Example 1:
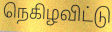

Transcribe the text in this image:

நெகிழவிட்டு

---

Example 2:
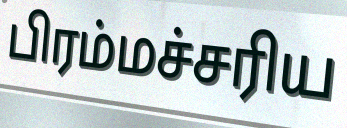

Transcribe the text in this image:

பிரம்மச்சரிய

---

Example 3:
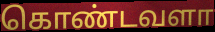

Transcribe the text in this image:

கொண்டவளா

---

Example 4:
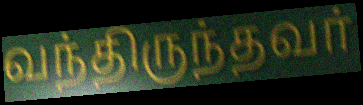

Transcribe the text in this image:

வந்திருந்தவர்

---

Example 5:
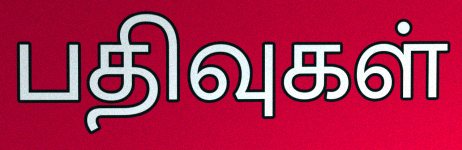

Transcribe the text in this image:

பதிவுகள்